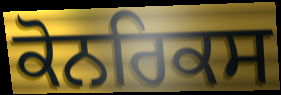
ਕੋਨਰਿਕਸ